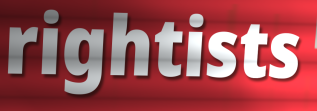
rightists